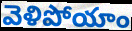
వెళిపోయాం